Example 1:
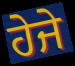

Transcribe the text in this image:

ਹੇਜੇ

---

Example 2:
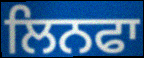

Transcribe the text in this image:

ਲਿਨਫਾ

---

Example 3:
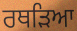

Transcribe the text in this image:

ਰਥੜਿਆ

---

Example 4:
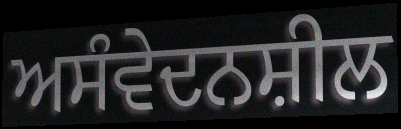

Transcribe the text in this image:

ਅਸੰਵੇਦਨਸ਼ੀਲ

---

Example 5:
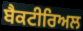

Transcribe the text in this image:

ਬੈਕਟੀਰਿਅਲ